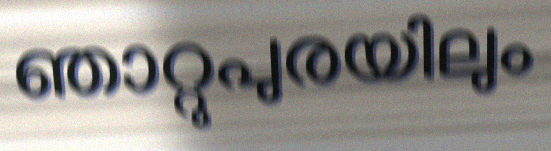
ഞാറ്റുപുരയിലും